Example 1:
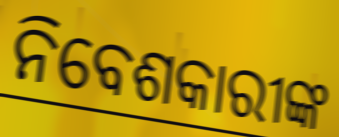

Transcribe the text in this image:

ନିବେଶକାରୀଙ୍କ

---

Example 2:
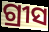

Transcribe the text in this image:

ଗ୍ରୀସ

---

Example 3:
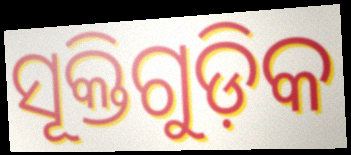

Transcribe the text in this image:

ସୂକ୍ତିଗୁଡ଼ିକ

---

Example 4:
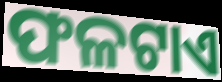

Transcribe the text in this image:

ଫଳଟାଏ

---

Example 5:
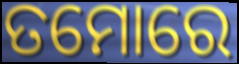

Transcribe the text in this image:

ତମୋରେ